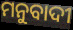
ମନୁବାଦୀ